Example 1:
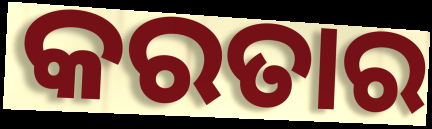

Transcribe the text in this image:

କରତାର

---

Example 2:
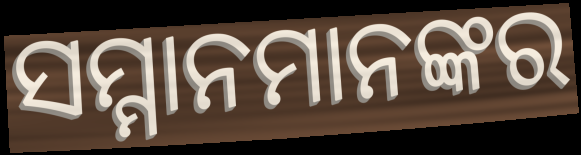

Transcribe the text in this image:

ସମ୍ମାନମାନଙ୍କର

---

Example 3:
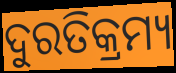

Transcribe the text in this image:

ଦୁରତିକ୍ରମ୍ୟ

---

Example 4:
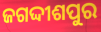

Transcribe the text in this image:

ଜଗଦ୍ଦୀଶପୁର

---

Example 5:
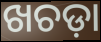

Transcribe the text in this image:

ଖଚଡ଼ା